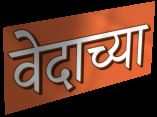
वेदाच्या